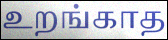
உறங்காத